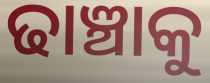
ଢାଞ୍ଚାକୁ